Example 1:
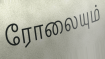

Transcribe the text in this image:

ரோலையும்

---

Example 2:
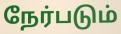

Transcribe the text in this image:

நேர்படும்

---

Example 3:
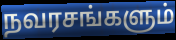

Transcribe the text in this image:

நவரசங்களும்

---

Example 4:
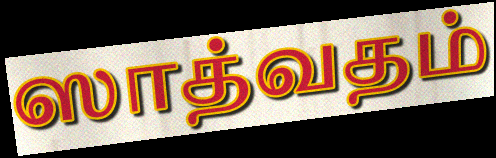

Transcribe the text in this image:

ஸாத்வதம்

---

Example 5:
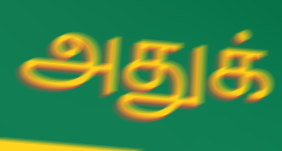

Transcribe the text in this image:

அதுக்